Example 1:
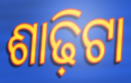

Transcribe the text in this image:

ଶାଢ଼ିଟା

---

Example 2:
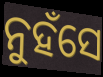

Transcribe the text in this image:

ନୁହଁସେ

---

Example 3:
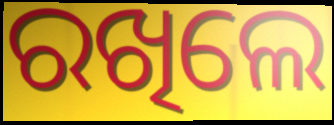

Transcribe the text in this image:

ରଖିଲେ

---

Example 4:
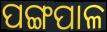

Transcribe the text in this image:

ପଙ୍ଗପାଳ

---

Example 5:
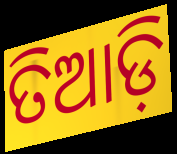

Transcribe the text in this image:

ତିଆଡ଼ି